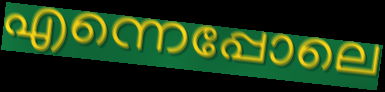
എന്നെപ്പോലെ